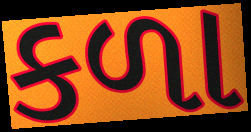
કળા